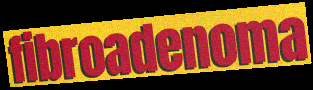
fibroadenoma